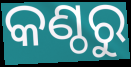
କଣ୍ଠରୁ